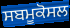
ਸਬਮੂਕੋਸਲ